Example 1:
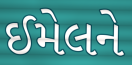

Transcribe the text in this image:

ઈમેલને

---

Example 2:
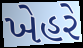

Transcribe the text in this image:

ખેહરે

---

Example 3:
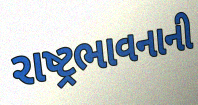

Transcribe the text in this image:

રાષ્ટ્રભાવનાની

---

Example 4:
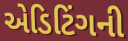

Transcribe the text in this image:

એડિટિંગની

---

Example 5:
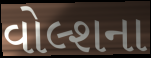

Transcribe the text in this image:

વોલ્શના